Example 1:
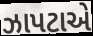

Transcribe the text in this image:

ઝાપટાએ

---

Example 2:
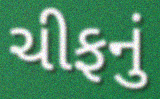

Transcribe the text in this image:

ચીફનું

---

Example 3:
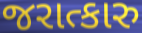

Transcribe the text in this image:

જરાત્કારુ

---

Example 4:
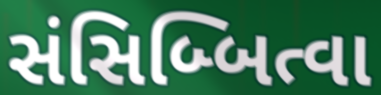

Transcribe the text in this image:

સંસિબ્બિત્વા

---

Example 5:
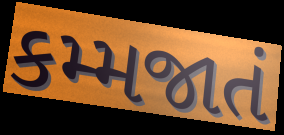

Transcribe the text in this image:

કમ્મજાતં